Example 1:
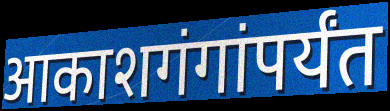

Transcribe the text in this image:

आकाशगंगांपर्यंत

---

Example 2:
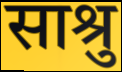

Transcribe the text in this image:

साश्रु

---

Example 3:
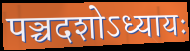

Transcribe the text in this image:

पञ्चदशोऽध्यायः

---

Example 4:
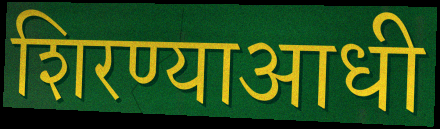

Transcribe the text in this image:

शिरण्याआधी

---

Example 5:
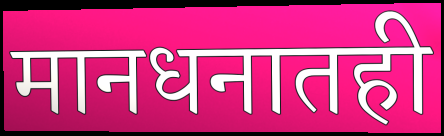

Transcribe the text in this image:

मानधनातही